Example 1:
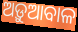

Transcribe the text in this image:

ଅଡ଼ୁଆବାଳ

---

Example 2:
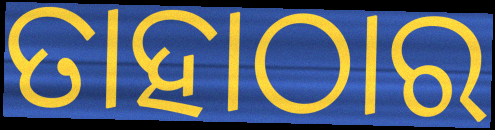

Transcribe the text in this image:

ତାହାଠାର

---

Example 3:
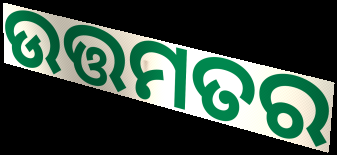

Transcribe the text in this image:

ଉତ୍ତମତର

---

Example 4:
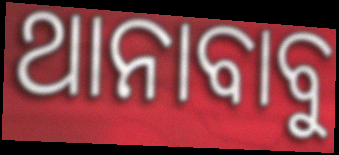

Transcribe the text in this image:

ଥାନାବାବୁ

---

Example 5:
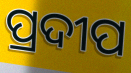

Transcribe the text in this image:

ପ୍ରଦୀପ